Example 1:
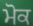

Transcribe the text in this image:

ਮੋਕ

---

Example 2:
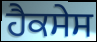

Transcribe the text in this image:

ਹੈਕਸੇਸ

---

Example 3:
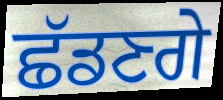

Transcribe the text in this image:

ਛੱਡਣਗੇ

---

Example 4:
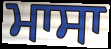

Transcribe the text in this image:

ਮਾਸਾ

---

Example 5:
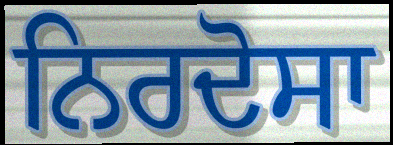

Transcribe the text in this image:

ਨਿਰਦੋਸਾ